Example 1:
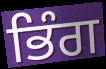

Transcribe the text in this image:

ਭਿੰਗ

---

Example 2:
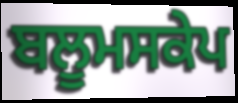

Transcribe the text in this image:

ਬਲੂਮਸਕੇਪ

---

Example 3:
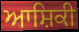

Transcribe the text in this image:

ਆਸ਼ਿਕੀ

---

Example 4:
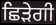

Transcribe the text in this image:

ਛਿੜੇਗੀ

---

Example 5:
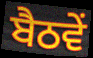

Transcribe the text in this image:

ਬੈਠਵੇਂ